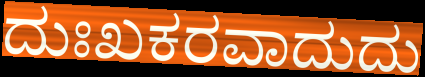
ದುಃಖಕರವಾದುದು